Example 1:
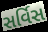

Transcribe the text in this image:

સર્વિસ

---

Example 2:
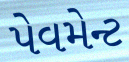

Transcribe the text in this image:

પેવમેન્ટ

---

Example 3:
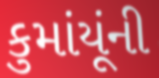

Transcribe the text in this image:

કુમાંયૂંની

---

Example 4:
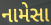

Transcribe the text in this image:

નામેસા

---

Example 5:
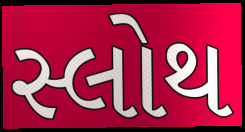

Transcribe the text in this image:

સ્લોથ